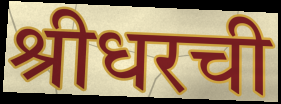
श्रीधरची